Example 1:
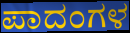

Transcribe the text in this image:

ಪಾದಂಗಳ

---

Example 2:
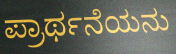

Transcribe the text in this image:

ಪ್ರಾರ್ಥನೆಯನು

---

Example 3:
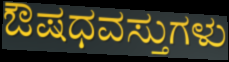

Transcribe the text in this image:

ಔಷಧವಸ್ತುಗಳು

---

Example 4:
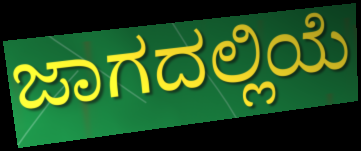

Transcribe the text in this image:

ಜಾಗದಲ್ಲಿಯೆ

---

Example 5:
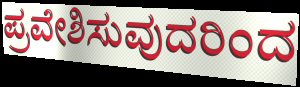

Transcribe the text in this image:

ಪ್ರವೇಶಿಸುವುದರಿಂದ